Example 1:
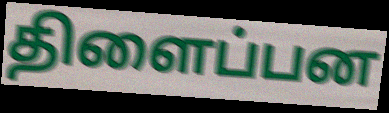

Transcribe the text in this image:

திளைப்பன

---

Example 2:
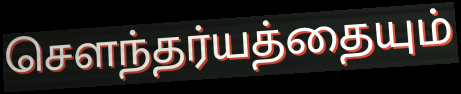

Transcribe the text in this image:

சௌந்தர்யத்தையும்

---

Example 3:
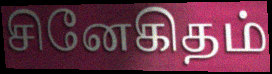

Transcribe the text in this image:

சினேகிதம்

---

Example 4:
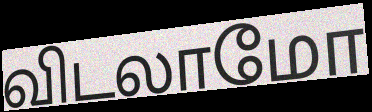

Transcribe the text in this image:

விடலாமோ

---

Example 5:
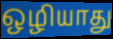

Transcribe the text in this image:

ஒழியாது